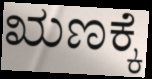
ಋಣಕ್ಕೆ